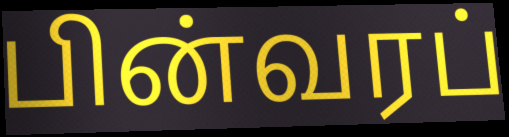
பின்வரப்